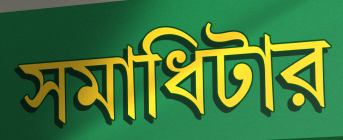
সমাধিটার